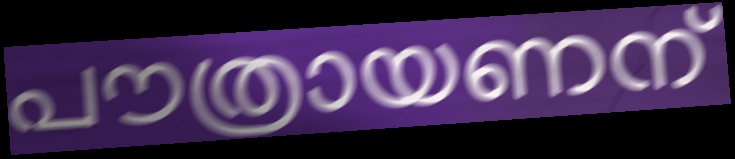
പൗത്രായണന്